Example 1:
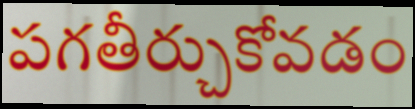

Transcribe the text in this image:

పగతీర్చుకోవడం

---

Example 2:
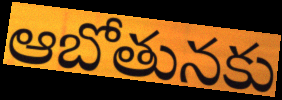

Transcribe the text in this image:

ఆబోతునకు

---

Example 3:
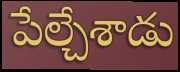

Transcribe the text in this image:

పేల్చేశాడు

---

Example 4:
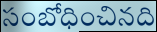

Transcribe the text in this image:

సంబోధించినది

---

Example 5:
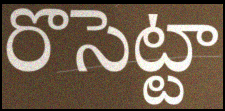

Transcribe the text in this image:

రొసెట్టా